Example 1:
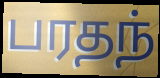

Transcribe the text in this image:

பரதந்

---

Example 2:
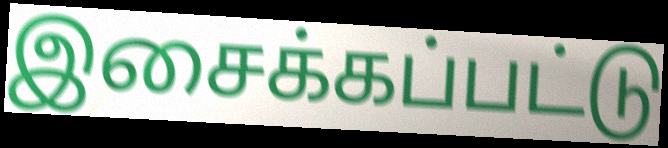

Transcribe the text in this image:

இசைக்கப்பட்டு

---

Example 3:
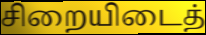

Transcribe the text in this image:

சிறையிடைத்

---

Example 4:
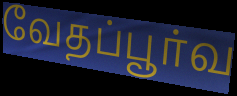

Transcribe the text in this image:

வேதப்பூர்வ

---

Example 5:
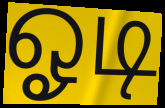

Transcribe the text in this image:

ஓடி